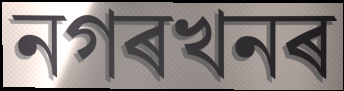
নগৰখনৰ